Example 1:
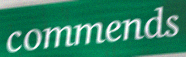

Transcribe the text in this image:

commends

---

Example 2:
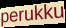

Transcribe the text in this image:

perukku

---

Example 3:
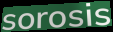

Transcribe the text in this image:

sorosis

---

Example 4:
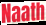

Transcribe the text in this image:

Naath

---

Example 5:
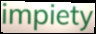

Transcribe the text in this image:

impiety